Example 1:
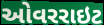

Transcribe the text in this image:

ઓવરરાઇટ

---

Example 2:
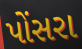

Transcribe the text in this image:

પોંસરા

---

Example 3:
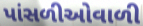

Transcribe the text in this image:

પાંસળીઓવાળી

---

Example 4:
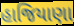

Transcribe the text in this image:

હાજિયાણા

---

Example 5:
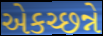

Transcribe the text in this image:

એકચ્છન્ને